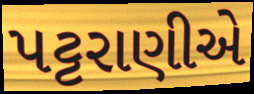
પટ્ટરાણીએ